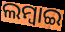
ଲମ୍ବାଇ